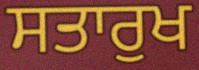
ਸਤਾਰੁਖ